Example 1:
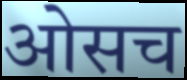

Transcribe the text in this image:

ओसच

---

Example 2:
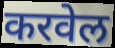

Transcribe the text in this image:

करवेल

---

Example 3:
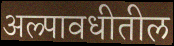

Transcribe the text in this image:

अल्पावधीतील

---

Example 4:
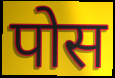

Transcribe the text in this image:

पोस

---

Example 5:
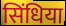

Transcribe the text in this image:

सिंधिया